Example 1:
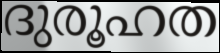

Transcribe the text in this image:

ദുരൂഹത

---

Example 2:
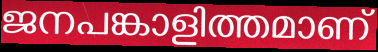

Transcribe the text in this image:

ജനപങ്കാളിത്തമാണ്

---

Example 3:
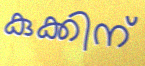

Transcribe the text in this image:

കുക്കിന്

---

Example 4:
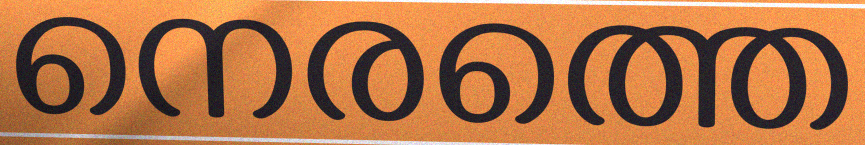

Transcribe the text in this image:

നെരത്തെ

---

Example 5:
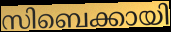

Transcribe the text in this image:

സിബെക്കായി